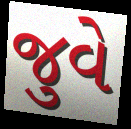
જુવે